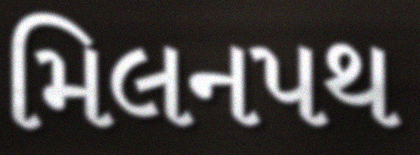
મિલનપથ